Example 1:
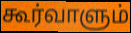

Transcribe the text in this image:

கூர்வாளும்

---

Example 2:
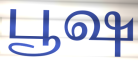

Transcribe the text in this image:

பூஷ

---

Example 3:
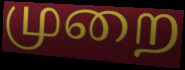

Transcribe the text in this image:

முறை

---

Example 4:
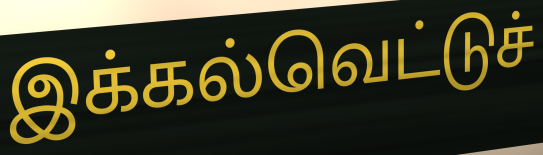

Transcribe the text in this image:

இக்கல்வெட்டுச்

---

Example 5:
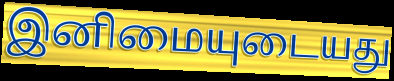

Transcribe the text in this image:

இனிமையுடையது